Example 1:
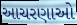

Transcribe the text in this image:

આચરણાઓ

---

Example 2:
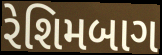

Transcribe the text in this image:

રેશિમબાગ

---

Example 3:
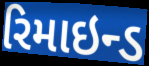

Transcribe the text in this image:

રિમાઇન્ડ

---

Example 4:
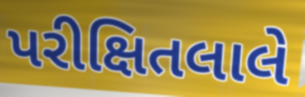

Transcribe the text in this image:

પરીક્ષિતલાલે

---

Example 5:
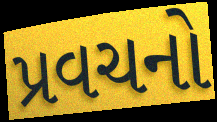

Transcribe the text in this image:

પ્રવચનો